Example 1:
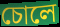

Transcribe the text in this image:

চোলে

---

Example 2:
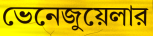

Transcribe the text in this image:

ভেনেজুয়েলার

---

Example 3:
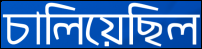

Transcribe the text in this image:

চালিয়েছিল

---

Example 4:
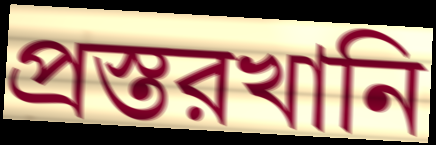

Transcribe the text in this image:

প্রস্তরখানি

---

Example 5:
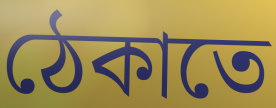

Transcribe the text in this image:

ঠেকাতে